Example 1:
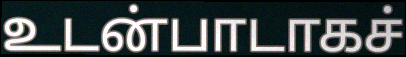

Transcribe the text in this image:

உடன்பாடாகச்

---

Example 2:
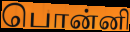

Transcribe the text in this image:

பொன்னி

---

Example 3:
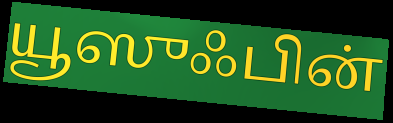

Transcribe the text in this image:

யூஸுஃபின்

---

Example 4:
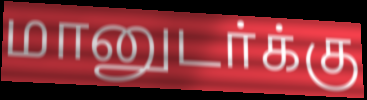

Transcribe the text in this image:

மானுடர்க்கு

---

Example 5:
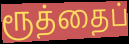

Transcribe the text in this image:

ரூத்தைப்